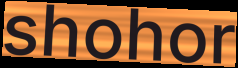
shohor